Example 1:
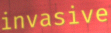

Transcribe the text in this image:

invasive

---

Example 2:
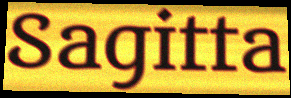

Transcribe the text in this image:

Sagitta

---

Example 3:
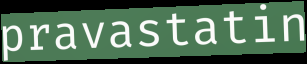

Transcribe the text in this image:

pravastatin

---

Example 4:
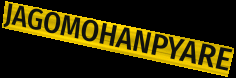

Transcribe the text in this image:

JAGOMOHANPYARE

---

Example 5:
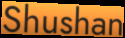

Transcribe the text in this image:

Shushan